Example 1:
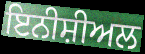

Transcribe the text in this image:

ਇਨੀਸ਼ੀਅਲ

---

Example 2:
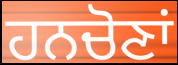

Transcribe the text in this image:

ਹਨਚੋਣਾਂ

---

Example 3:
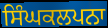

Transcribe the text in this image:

ਸਿੰਘਕਲਪਨਾ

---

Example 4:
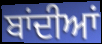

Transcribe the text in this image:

ਬਾਂਦੀਆਂ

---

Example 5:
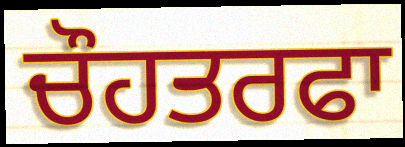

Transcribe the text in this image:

ਚੌਹਤਰਫਾ